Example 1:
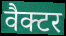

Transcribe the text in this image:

वैक्टर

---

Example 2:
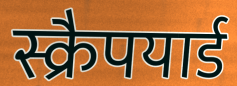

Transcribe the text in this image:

स्क्रैपयार्ड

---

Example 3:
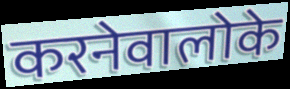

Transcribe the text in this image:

करनेवालोके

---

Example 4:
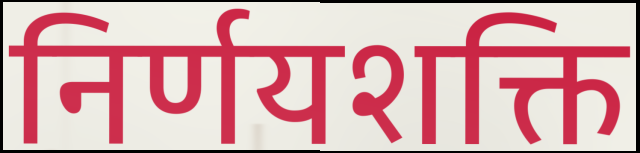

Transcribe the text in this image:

निर्णयशक्ति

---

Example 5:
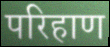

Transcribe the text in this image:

परिहाण